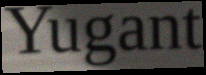
Yugant